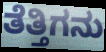
ತೆತ್ತಿಗನು